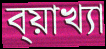
ব্য়াখ্যা